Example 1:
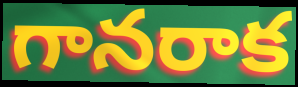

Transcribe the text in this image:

గానరాక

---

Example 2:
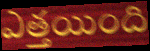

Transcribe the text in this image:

ఎత్తయింది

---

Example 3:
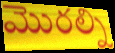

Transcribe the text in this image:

మొరల్ని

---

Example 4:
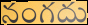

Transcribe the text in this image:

నంగదు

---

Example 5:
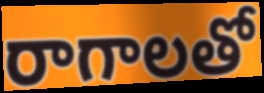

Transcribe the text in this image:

రాగాలతో